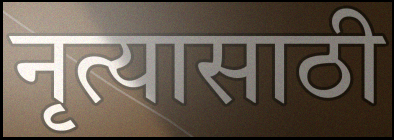
नृत्यासाठी